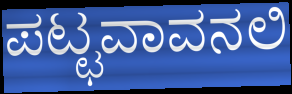
ಪಟ್ಟವಾವನಲಿ